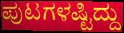
ಪುಟಗಳಷ್ಟಿದ್ದು